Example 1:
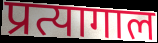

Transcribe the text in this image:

प्रत्यागाल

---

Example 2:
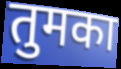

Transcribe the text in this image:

तुमका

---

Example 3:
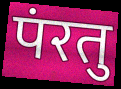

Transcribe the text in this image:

पंरतु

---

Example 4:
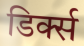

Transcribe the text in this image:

डिर्क्स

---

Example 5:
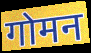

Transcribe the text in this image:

गोमन